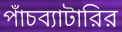
পাঁচব্যাটারির